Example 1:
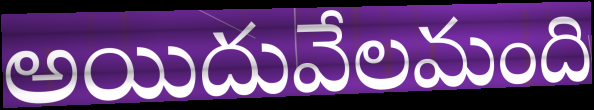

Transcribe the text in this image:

అయిదువేలమంది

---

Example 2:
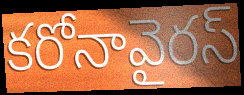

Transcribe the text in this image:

కరోనావైరస్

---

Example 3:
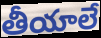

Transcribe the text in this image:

తీయాలే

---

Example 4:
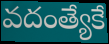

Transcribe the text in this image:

వదంత్యేకే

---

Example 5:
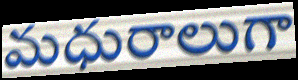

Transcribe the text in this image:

మధురాలుగా